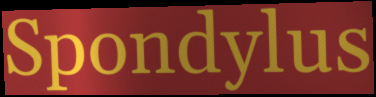
Spondylus